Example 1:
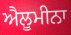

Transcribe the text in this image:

ਐਲੂਮੀਨਾ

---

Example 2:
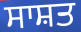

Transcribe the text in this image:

ਸਾਸ਼ਤ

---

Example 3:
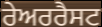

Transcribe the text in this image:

ਰੇਅਰਰੈਸਟ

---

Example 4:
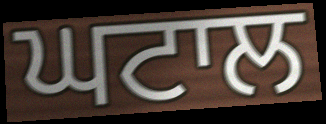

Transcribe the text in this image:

ਘਟਾਲ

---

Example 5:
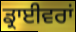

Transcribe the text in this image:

ਡ੍ਰਾਈਵਰਾਂ